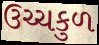
ઉચ્ચકુળ